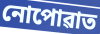
নোপোৱাত